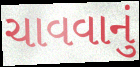
ચાવવાનું